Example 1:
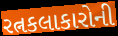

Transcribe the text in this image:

રત્નકલાકારોની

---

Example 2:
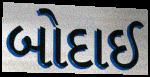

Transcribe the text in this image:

બોદાઈ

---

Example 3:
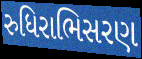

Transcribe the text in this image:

રુધિરાભિસરણ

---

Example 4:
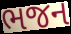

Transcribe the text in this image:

ભજન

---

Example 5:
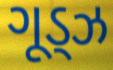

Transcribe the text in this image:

ગૂડ્ઝ